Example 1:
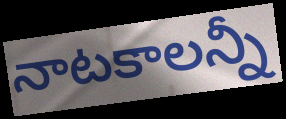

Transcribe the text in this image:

నాటకాలన్నీ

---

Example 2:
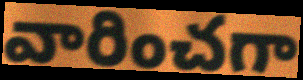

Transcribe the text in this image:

వారించగా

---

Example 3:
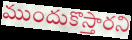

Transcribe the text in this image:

ముందుకొస్తారని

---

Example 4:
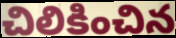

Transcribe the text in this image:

చిలికించిన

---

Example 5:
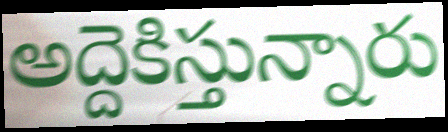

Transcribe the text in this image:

అద్దెకిస్తున్నారు